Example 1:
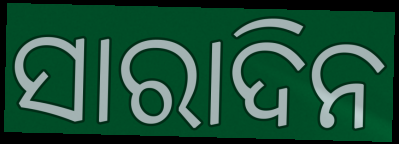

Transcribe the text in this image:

ସାରାଦିନ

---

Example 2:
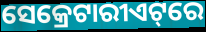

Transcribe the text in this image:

ସେକ୍ରେଟାରୀଏଟ୍‌ରେ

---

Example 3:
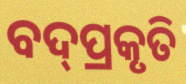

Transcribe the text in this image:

ବଦ୍‌ପ୍ରକୃତି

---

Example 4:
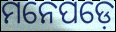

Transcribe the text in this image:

ମନେପଡ଼େ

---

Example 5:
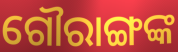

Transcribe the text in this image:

ଗୌରାଙ୍ଗଙ୍କ